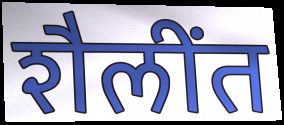
शैलींत